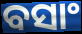
ବସାଂ